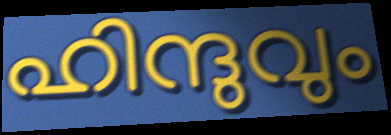
ഹിന്ദുവും